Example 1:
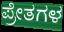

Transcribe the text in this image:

ಪ್ರೇತಗಳ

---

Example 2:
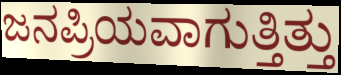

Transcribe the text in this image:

ಜನಪ್ರಿಯವಾಗುತ್ತಿತ್ತು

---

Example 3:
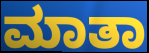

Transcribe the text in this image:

ಮಾತಾ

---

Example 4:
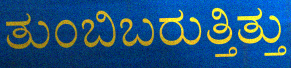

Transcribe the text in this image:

ತುಂಬಿಬರುತ್ತಿತ್ತು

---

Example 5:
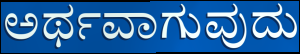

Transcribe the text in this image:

ಅರ್ಥವಾಗುವುದು